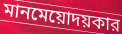
মানমেয়োদয়কার